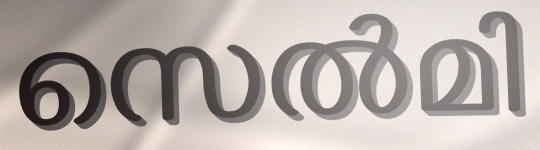
സെൽമി